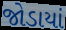
જોડાયાં